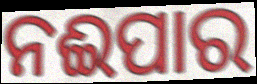
ନଈପାର